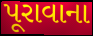
પૂરાવાના